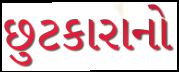
છુટકારાનો